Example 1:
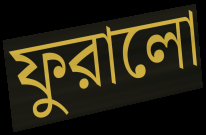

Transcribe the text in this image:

ফুরালো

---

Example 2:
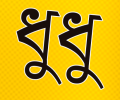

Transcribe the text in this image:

ধুধু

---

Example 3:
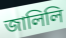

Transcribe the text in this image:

জালিলি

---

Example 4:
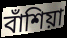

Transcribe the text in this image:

বাঁশিয়া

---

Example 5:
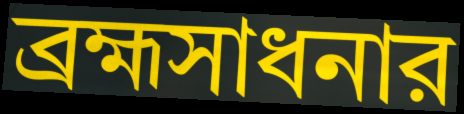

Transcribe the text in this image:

ব্রহ্মসাধনার